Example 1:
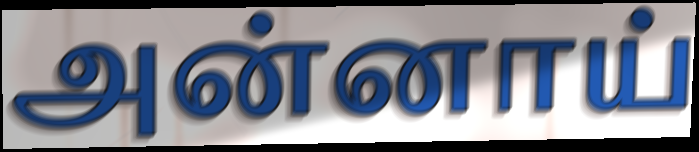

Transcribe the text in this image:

அன்னாய்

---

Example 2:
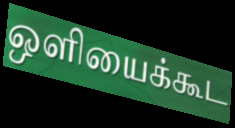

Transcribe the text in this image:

ஒளியைக்கூட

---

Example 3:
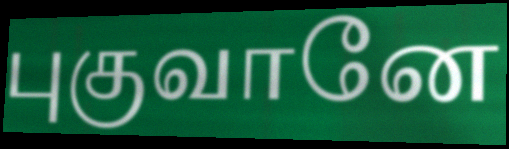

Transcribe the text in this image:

புகுவானே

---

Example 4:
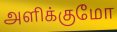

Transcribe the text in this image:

அளிக்குமோ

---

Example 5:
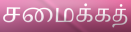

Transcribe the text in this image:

சமைக்கத்